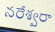
నరేశ్వరా